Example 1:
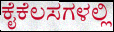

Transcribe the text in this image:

ಕೈಕೆಲಸಗಳಲ್ಲಿ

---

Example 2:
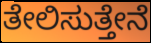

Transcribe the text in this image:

ತೇಲಿಸುತ್ತೇನೆ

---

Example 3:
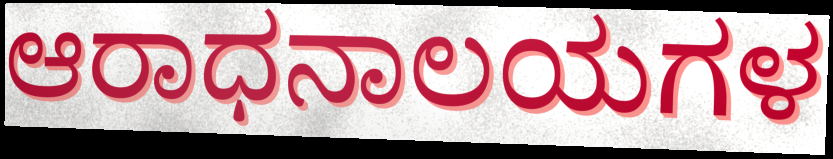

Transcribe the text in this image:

ಆರಾಧನಾಲಯಗಳ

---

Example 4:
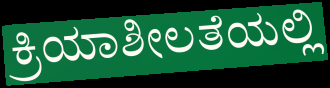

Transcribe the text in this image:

ಕ್ರಿಯಾಶೀಲತೆಯಲ್ಲಿ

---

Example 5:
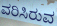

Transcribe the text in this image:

ವರಿಸಿರುವ